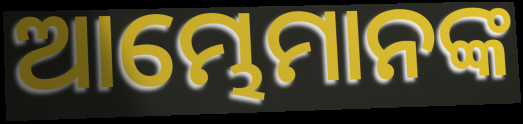
ଆମ୍ଭେମାନଙ୍କ